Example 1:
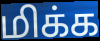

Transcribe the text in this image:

மிக்க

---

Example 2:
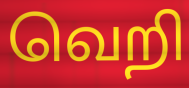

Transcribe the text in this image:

வெறி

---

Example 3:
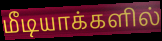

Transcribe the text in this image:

மீடியாக்களில்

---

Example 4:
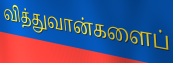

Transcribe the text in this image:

வித்துவான்களைப்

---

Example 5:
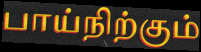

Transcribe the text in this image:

பாய்நிற்கும்